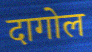
दागोल